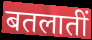
बतलातीं